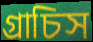
গ্রাচিস